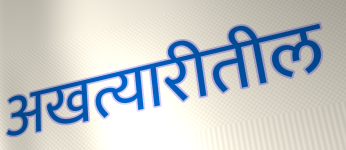
अखत्यारीतील